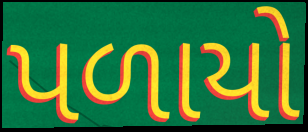
પળાયો